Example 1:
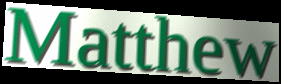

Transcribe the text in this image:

Matthew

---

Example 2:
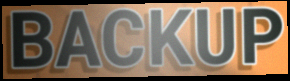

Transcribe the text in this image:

BACKUP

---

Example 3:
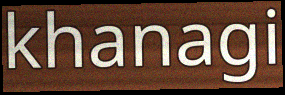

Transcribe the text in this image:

khanagi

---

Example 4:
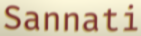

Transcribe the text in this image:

Sannati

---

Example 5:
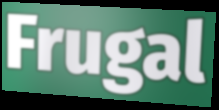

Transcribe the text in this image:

Frugal